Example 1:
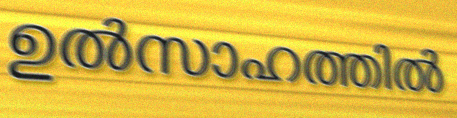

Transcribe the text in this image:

ഉൽസാഹത്തിൽ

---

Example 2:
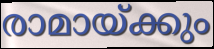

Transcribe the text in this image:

രാമായ്ക്കും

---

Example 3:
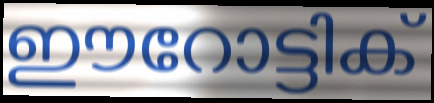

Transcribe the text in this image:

ഈറോട്ടിക്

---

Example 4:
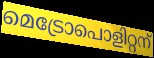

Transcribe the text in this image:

മെട്രോപൊളിറ്റന്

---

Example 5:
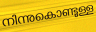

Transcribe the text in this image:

നിന്നുകൊണ്ടുള്ള